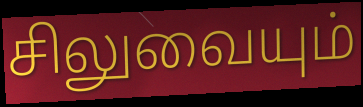
சிலுவையும்